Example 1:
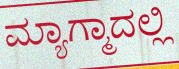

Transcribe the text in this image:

ಮ್ಯಾಗ್ಮಾದಲ್ಲಿ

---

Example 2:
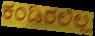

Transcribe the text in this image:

ಕಂಡಿರಲಿಲ್ಲ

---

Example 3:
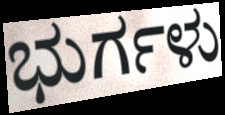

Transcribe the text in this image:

ಭುರ್ಗಳು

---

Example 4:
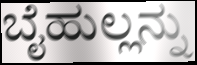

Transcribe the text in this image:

ಬೈಹುಲ್ಲನ್ನು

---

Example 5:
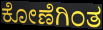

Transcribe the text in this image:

ಕೋಣೆಗಿಂತ